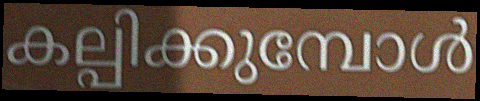
കല്പിക്കുമ്പോൾ